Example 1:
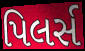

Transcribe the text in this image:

પિલર્સ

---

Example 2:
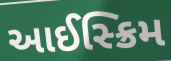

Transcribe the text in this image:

આઈસ્ક્રિમ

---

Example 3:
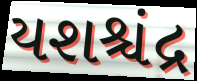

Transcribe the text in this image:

યશશ્ચંદ્ર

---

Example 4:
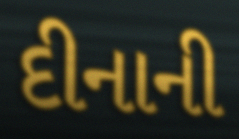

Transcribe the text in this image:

દીનાની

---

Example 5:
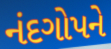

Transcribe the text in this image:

નંદગોપને